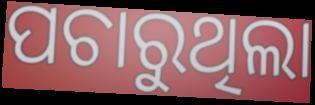
ପଚାରୁଥିଲା